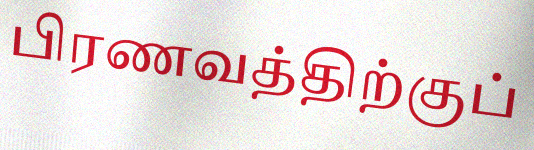
பிரணவத்திற்குப்